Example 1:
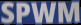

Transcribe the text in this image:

SPWM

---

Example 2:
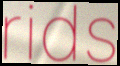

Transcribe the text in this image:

rids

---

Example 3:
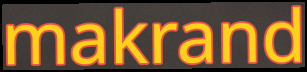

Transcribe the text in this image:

makrand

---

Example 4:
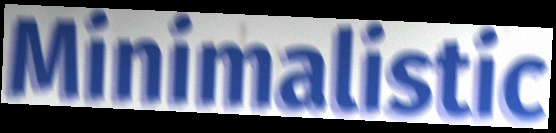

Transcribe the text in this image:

Minimalistic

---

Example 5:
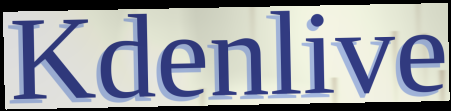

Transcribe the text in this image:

Kdenlive